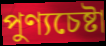
পুণ্যচেষ্টা